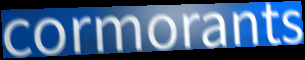
cormorants